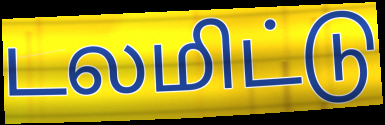
டலமிட்டு